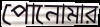
পোনোমার